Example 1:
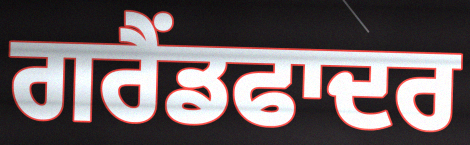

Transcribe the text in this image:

ਗਰੈਂਡਫਾਦਰ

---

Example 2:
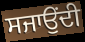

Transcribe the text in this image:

ਸਜਾਉਂਦੀ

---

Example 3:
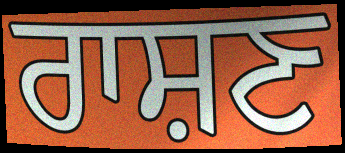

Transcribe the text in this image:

ਰਾਸ਼ਣ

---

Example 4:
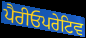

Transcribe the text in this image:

ਪੈਰੀਓਪਰੇਟਿਵ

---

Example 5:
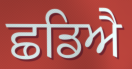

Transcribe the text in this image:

ਛਡਿਐ